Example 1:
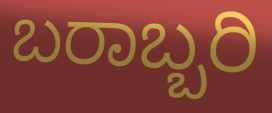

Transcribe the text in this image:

ಬರಾಬ್ಬರಿ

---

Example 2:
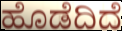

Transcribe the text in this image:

ಹೊಡೆದಿದೆ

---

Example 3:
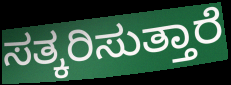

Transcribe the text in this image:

ಸತ್ಕರಿಸುತ್ತಾರೆ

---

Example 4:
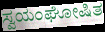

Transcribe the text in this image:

ಸ್ವಯಂಘೋಷಿತ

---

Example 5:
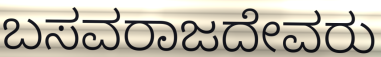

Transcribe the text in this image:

ಬಸವರಾಜದೇವರು